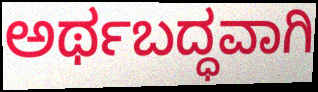
ಅರ್ಥಬದ್ಧವಾಗಿ